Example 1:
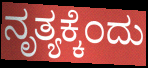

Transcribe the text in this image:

ನೃತ್ಯಕ್ಕೆಂದು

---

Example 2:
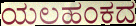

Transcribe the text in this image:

ಯಲಹಂಕದ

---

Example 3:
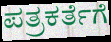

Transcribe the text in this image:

ಪತ್ರಕರ್ತೆಗೆ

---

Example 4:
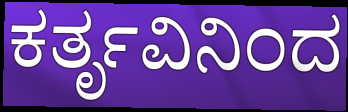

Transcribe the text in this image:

ಕರ್ತೃವಿನಿಂದ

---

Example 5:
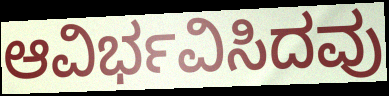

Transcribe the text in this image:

ಆವಿರ್ಭವಿಸಿದವು